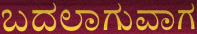
ಬದಲಾಗುವಾಗ